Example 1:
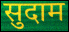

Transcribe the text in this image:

सुदाम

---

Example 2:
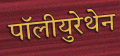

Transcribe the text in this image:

पॉलीयुरेथेन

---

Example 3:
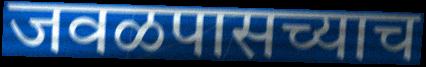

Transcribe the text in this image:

जवळपासच्याच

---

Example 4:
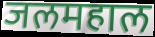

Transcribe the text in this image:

जलमहाल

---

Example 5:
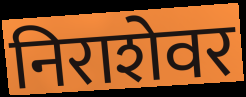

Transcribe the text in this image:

निराशेवर